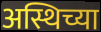
अस्थिच्या